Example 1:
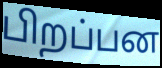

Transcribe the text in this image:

பிறப்பன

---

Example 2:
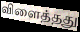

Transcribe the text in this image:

விளைத்தது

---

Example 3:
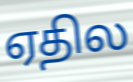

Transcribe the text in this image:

ஏதில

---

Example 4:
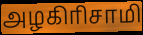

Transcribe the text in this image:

அழகிரிசாமி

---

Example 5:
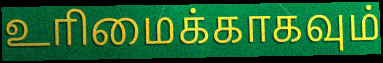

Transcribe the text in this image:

உரிமைக்காகவும்